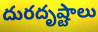
దురదృష్టాలు